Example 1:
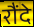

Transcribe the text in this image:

रौंदे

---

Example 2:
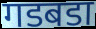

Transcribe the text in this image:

गडबडा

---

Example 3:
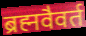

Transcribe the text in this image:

ब्रह्मवैवर्त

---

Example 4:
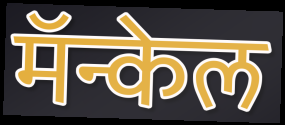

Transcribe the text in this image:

मॅन्केल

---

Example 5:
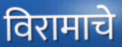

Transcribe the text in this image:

विरामाचे